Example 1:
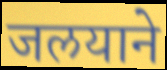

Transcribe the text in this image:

जलयाने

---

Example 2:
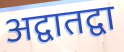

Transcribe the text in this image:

अद्वातद्वा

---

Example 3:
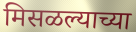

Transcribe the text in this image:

मिसळल्याच्या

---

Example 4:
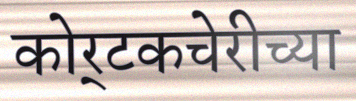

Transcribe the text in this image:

कोर्टकचेरीच्या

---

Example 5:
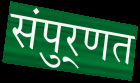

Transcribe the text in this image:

संपुर्णत